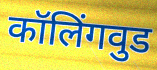
कॉलिंगवुड